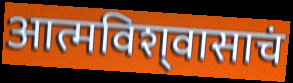
आत्मविश्वासाचं